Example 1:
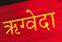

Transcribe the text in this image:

ऋग्वेदा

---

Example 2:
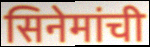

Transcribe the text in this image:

सिनेमांची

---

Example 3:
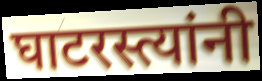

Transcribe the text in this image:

घाटरस्त्यांनी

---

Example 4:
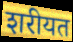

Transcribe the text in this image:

शरीयत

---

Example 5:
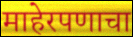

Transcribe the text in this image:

माहेरपणाचा